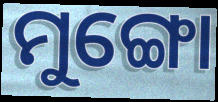
ମୁଙ୍ଗୋ